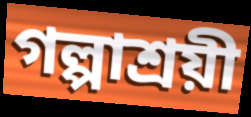
গল্পাশ্রয়ী